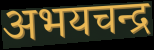
अभयचन्द्र